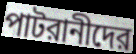
পাটরানীদের